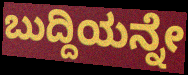
ಬುದ್ದಿಯನ್ನೇ